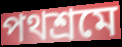
পথশ্রমে